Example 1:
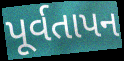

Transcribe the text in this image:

પૂર્વતાપન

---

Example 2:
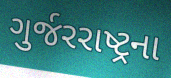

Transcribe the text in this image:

ગુર્જરરાષ્ટ્રના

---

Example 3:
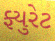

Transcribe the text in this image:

ફ્યુરેટ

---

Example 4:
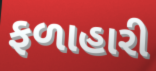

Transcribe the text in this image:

ફળાહારી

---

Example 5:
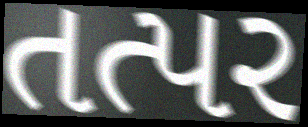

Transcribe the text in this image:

તત્પર